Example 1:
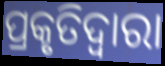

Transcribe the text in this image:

ପ୍ରକୃତିଦ୍ୱାରା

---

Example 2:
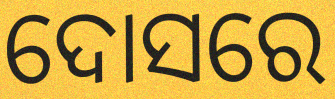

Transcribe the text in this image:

ଦୋସରେ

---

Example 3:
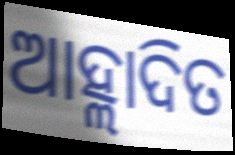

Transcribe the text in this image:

ଆହ୍ଲାଦିତ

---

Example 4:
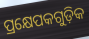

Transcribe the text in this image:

ପ୍ରକ୍ଷେପକଗୁଡ଼ିକ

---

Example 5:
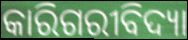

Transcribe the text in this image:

କାରିଗରୀବିଦ୍ୟା